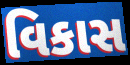
વિકાસ